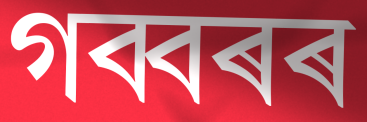
গব্বৰৰ